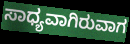
ಸಾಧ್ಯವಾಗಿರುವಾಗ